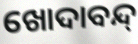
ଖୋଦାବନ୍ଦ୍